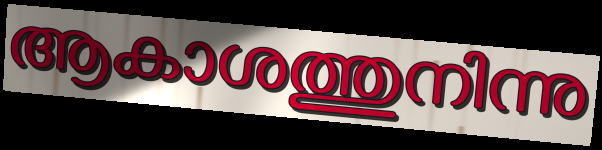
ആകാശത്തുനിന്നു